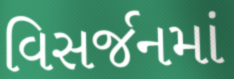
વિસર્જનમાં